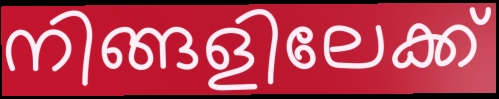
നിങ്ങളിലേക്ക്